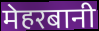
मेहरबानी